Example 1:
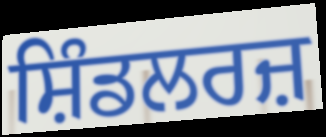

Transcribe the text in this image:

ਸ਼ਿੰਡਲਰਜ਼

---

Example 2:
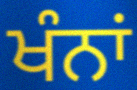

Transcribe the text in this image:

ਖੰਨਾਂ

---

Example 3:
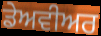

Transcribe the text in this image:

ਡੇਅਵੀਅਰ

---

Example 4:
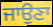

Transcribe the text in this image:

ਜਾਉਣਾ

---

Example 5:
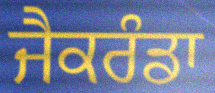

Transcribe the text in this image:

ਜੈਕਰੰਡਾ